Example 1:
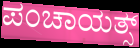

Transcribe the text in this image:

ಪಂಚಾಯತ್ಸ್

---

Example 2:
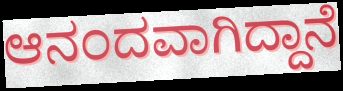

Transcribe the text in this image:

ಆನಂದವಾಗಿದ್ದಾನೆ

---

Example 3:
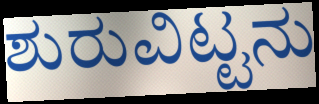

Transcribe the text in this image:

ಶುರುವಿಟ್ಟನು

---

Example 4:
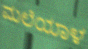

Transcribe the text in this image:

ಮಲೆಯಾಳ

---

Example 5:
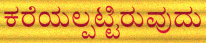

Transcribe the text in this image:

ಕರೆಯಲ್ಪಟ್ಟಿರುವುದು